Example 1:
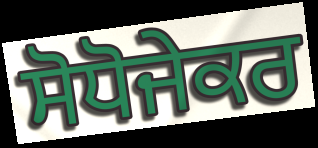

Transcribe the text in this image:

ਸੋਧੋਜੇਕਰ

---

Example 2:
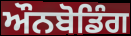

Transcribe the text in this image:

ਔਨਬੋਡਿੰਗ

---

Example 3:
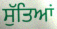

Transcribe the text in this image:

ਸੁੱਤਿਆਂ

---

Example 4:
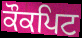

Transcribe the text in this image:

ਕੌਕਪਿਟ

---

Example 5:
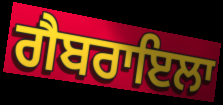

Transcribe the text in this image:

ਗੈਬਰਾਇਲਾ